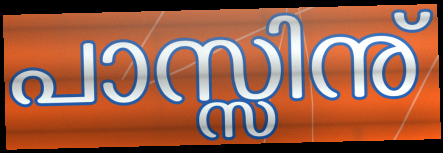
പാസ്സിനു്